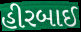
હીરબાઈ